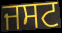
ਜਸਟ